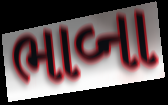
ભાવ્ના